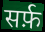
सर्फ़